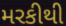
મરકીથી